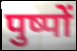
पुष्पों